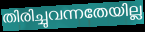
തിരിച്ചുവന്നതേയില്ല